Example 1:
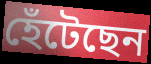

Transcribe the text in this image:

হেঁটেছেন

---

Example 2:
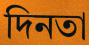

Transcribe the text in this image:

দিনতা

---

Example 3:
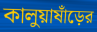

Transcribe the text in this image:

কালুয়াষাঁড়ের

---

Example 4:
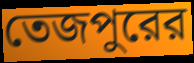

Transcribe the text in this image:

তেজপুরের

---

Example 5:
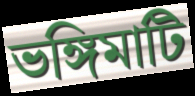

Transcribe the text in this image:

ভঙ্গিমাটি